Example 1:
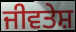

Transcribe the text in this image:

ਜੀਵਤੇਸ਼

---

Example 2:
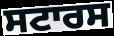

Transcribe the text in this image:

ਸਟਾਰਸ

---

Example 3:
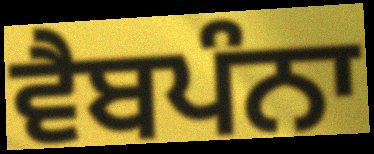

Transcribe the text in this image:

ਵੈਬਪੰਨਾ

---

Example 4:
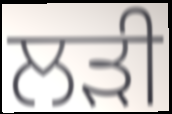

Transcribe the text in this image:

ਲਡ਼ੀ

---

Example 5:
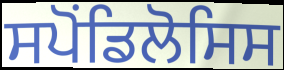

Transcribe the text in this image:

ਸਪੋਂਡਿਲੋਸਿਸ